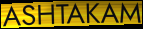
ASHTAKAM